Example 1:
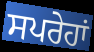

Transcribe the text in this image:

ਸਪਰੇਹਾਂ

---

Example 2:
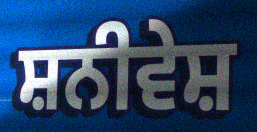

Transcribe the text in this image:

ਸ਼ਨੀਵੇਸ਼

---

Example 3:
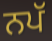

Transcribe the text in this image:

ਨਪੱ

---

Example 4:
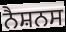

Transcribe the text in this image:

ਨੈਸ਼ਨਸ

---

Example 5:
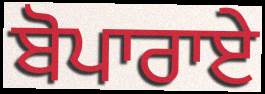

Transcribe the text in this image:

ਬੋਪਾਰਾਏ